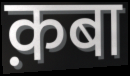
क़बा